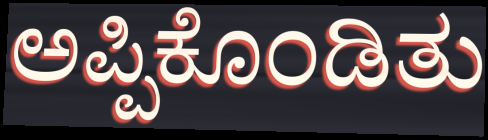
ಅಪ್ಪಿಕೊಂಡಿತು